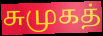
சுமுகத்